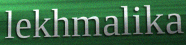
lekhmalika